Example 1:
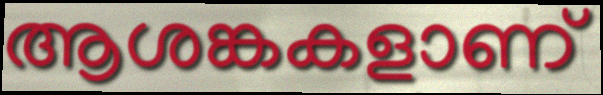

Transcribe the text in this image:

ആശങ്കകളാണ്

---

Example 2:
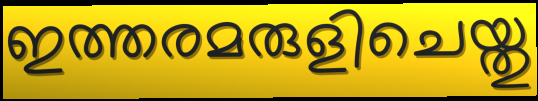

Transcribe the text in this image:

ഇത്തരമരുളിചെയ്തു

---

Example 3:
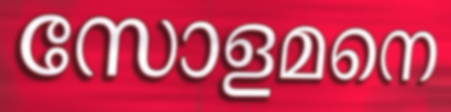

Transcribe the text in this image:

സോളമനെ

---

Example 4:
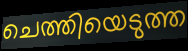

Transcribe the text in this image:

ചെത്തിയെടുത്ത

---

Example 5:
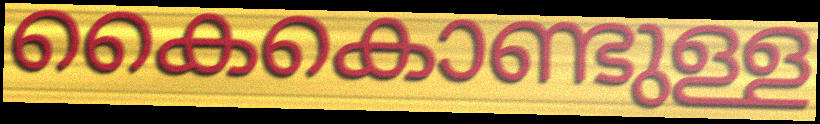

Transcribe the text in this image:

കൈകൊണ്ടുള്ള